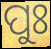
ପୁଃ